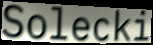
Solecki